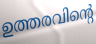
ഉത്തരവിന്റെ